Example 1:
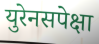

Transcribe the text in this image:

युरेनसपेक्षा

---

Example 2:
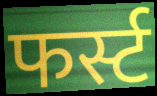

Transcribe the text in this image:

फर्स्ट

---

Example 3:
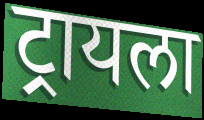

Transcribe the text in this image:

ट्रायला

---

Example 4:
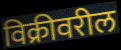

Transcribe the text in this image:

विक्रीवरील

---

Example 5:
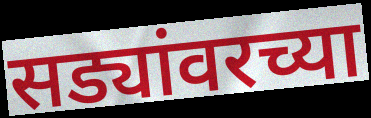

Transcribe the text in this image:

सड्यांवरच्या